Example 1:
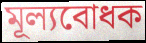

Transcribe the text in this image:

মূল্যবোধক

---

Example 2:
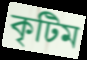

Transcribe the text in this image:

কৃটিম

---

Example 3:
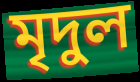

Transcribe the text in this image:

মৃদুল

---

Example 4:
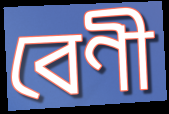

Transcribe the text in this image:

বেণী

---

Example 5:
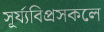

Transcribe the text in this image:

সূৰ্য্যবিপ্ৰসকলে